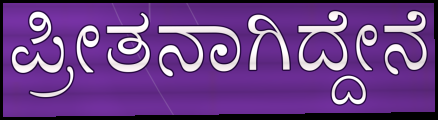
ಪ್ರೀತನಾಗಿದ್ದೇನೆ